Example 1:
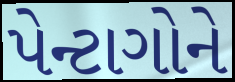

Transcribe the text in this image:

પેન્ટાગોને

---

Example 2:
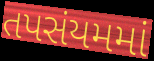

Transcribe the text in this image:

તપસંયમમાં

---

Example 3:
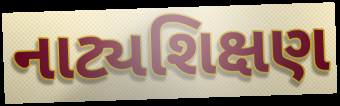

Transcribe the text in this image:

નાટ્યશિક્ષણ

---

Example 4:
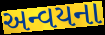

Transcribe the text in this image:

અન્વયના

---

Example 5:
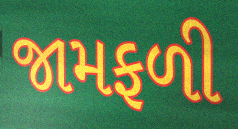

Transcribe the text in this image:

જામફળી